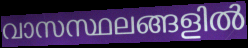
വാസസ്ഥലങ്ങളിൽ